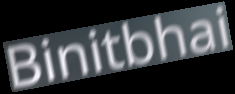
Binitbhai